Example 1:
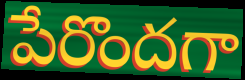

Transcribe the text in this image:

పేరొందగా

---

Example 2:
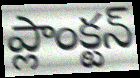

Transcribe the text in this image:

ప్లాంక్టన్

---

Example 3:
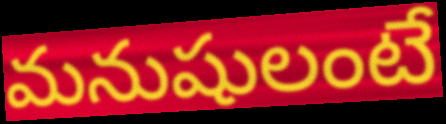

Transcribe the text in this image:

మనుషులంటే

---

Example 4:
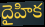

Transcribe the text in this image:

దైహిక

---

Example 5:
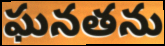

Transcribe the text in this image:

ఘనతను